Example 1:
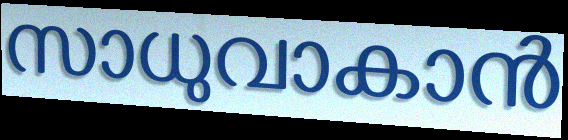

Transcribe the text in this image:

സാധുവാകാൻ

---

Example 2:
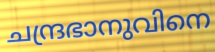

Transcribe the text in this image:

ചന്ദ്രഭാനുവിനെ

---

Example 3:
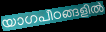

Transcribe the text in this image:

യാഗപീഠങ്ങളിൽ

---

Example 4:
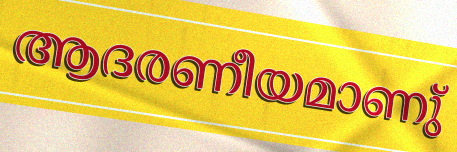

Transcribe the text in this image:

ആദരണീയമാണു്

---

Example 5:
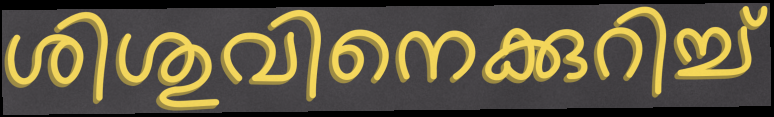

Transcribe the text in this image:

ശിശുവിനെക്കുറിച്ച്